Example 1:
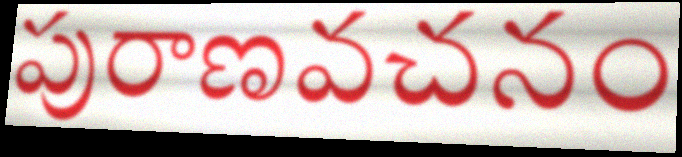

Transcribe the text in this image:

పురాణవచనం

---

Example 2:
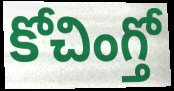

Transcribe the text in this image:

కోచింగ్తో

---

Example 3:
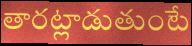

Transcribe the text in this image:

తారట్లాడుతుంటే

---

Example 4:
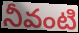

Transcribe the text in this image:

నీవంటి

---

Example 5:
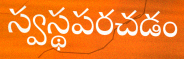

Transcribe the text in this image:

స్వస్థపరచడం